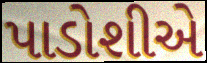
પાડોશીએ